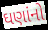
ઘણાંનો